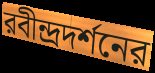
রবীন্দ্রদর্শনের